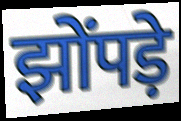
झोंपड़े